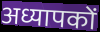
अध्यापकों